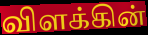
விளக்கின்